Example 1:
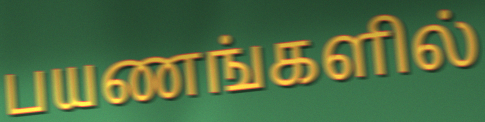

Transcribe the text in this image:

பயணங்களில்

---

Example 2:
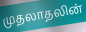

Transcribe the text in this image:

முதலாதலின்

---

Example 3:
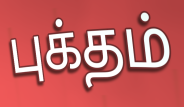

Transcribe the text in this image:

புக்தம்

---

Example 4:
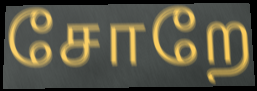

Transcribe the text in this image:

சோறே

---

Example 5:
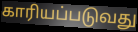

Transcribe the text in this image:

காரியப்படுவது